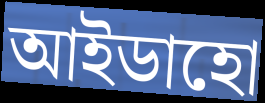
আইডাহো